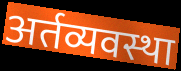
अर्तव्यवस्था